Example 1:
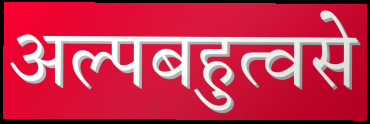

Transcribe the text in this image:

अल्पबहुत्वसे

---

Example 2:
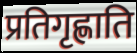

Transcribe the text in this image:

प्रतिगृह्णाति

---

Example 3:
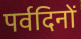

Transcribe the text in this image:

पर्वदिनों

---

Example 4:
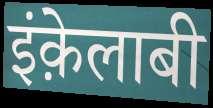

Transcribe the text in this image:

इंक़ेलाबी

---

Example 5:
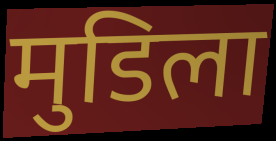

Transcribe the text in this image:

मुडिला